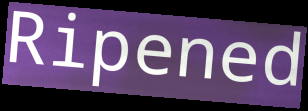
Ripened